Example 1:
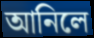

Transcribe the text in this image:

আনিলে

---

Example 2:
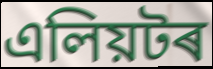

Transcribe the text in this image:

এলিয়টৰ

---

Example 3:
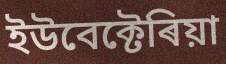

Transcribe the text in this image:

ইউবেক্টেৰিয়া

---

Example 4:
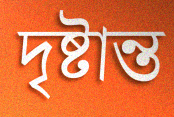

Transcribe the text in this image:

দৃষ্টান্ত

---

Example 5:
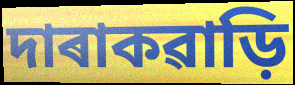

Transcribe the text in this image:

দাৰাকৱাড়ি